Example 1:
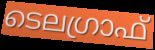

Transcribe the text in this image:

ടെലഗ്രാഫ്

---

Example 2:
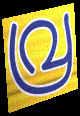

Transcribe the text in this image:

വ്ര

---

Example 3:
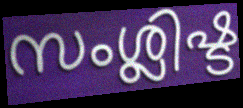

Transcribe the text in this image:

സംശ്ലിഷ്ട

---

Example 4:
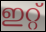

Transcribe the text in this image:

ഇറ്റ്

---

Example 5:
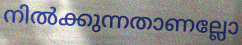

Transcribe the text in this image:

നിൽക്കുന്നതാണല്ലോ